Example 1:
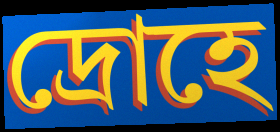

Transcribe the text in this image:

দ্রোহে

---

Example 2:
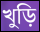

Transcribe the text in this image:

খুড়ি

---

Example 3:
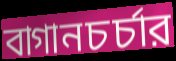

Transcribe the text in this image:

বাগানচর্চার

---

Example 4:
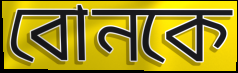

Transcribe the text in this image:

বোনকে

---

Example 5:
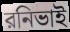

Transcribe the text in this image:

রনিভাই